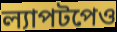
ল্যাপটপেও